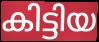
കിട്ടിയ